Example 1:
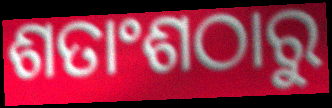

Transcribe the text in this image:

ଶତାଂଶଠାରୁ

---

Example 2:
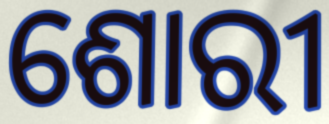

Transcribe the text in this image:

ଶୋରୀ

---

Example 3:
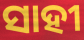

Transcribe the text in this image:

ସାହୀ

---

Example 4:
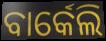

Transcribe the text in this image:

ବାର୍କେଲି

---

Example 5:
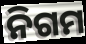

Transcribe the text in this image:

ନିଗମ